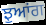
ਝੁਆਂਗ